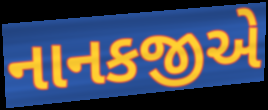
નાનકજીએ